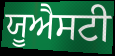
ਯੂਐਸਟੀ